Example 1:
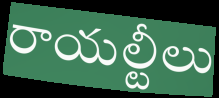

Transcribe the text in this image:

రాయల్టీలు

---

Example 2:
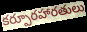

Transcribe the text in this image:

కర్పూరహారతులు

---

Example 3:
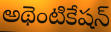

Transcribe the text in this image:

అథెంటికేషన్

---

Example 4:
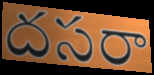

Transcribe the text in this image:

దసరా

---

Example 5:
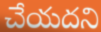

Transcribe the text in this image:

చేయదని